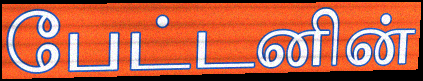
பேட்டனின்